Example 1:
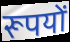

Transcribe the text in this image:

रूपयों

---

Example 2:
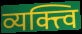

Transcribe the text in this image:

व्यक्त्त्वि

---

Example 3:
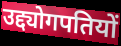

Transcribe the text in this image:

उद्द्योगपतियों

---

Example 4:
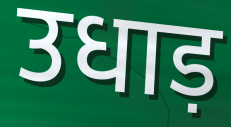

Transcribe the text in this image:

उधाड़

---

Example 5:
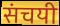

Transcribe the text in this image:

संचयी